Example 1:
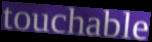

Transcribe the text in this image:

touchable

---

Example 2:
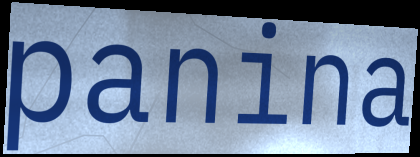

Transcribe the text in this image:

panina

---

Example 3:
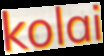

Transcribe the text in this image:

kolai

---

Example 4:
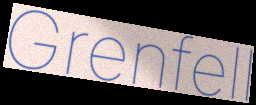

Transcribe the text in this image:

Grenfell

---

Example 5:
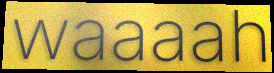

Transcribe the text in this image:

waaaah